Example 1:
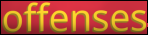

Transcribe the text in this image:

offenses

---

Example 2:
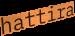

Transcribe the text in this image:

hattira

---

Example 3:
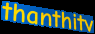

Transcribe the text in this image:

thanthitv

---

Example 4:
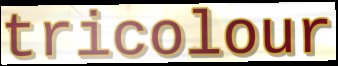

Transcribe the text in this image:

tricolour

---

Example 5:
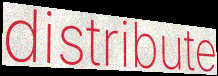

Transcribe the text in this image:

distribute